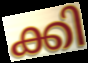
ക്കി